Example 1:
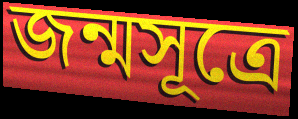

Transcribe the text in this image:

জন্মসূত্ৰে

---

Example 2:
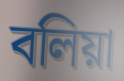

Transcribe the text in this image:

বলিয়া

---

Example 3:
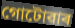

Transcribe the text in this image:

গোটোৱাৰ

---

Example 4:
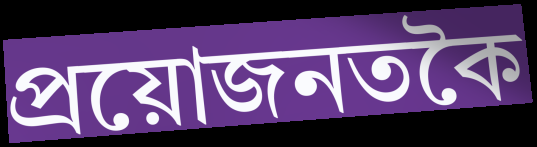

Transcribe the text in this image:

প্ৰয়োজনতকৈ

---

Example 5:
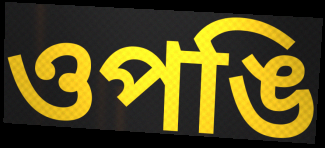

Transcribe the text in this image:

ওপঙি